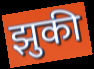
झुकी